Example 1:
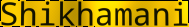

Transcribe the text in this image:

Shikhamani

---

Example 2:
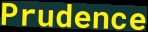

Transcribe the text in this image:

Prudence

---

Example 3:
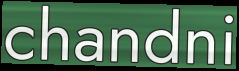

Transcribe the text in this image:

chandni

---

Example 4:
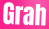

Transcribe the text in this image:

Grah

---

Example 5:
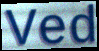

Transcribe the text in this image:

Ved